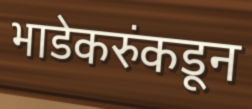
भाडेकरुंकडून